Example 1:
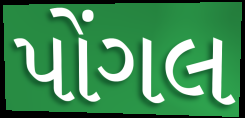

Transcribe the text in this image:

પોંગલ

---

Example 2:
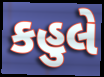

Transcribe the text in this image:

કહુલે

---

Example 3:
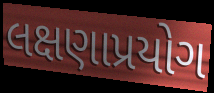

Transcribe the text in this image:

લક્ષણાપ્રયોગ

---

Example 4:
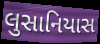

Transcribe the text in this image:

લુસાનિયાસ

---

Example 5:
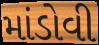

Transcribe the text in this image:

માંડોવી